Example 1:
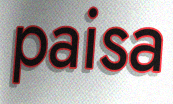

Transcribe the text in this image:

paisa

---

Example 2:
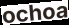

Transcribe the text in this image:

ochoa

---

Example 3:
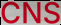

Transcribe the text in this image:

CNS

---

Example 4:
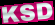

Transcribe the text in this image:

KSD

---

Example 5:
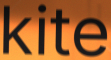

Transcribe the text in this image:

kite